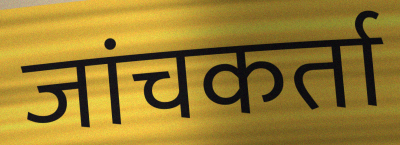
जांचकर्ता